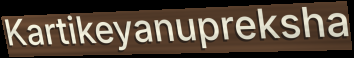
Kartikeyanupreksha